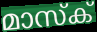
മാസ്‌ക്